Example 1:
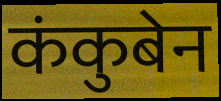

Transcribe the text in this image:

कंकुबेन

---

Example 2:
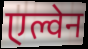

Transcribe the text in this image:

एल्वेन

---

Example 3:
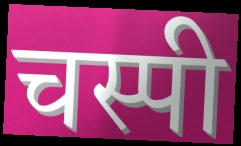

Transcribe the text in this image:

चस्पी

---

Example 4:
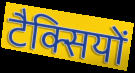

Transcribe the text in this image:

टैक्सियों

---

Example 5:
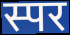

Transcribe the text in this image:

स्पर